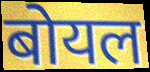
बोयल